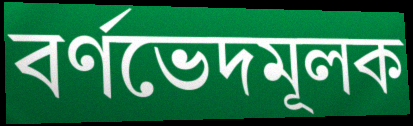
বর্ণভেদমূলক